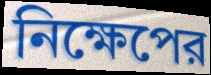
নিক্ষেপের